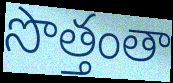
సొత్తంతా